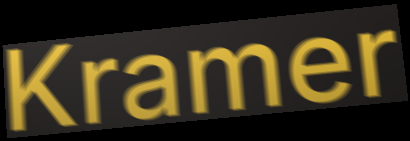
Kramer